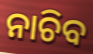
ନାଚିବ